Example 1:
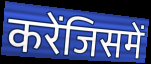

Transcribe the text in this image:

करेंजिसमें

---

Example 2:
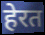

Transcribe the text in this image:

हेरत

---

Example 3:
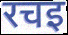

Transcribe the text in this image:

रचइ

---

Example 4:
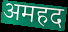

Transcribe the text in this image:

अमहद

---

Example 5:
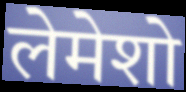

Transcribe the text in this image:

लेमेशो